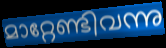
മാറ്റേണ്ടിവന്നു